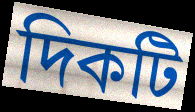
দিকটি